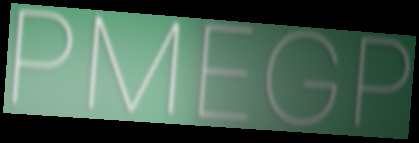
PMEGP